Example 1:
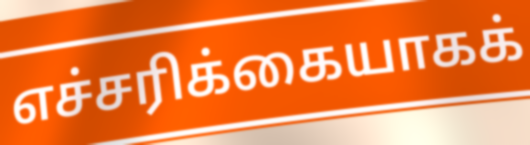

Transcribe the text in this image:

எச்சரிக்கையாகக்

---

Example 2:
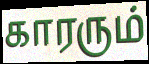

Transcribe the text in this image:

காரரும்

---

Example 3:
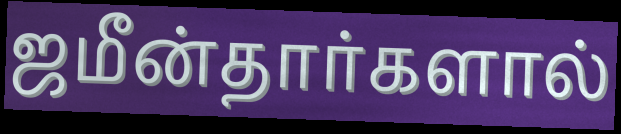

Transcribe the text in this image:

ஜமீன்தார்களால்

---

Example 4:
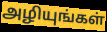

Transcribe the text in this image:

அழியுங்கள்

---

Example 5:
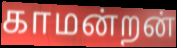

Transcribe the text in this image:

காமன்றன்